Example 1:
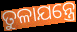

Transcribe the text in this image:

ତୁଳାଯନ୍ତ୍ରେ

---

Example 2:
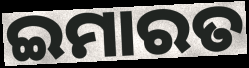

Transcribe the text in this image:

ଇମାରତ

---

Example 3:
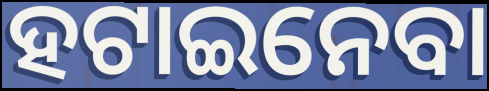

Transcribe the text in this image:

ହଟାଇନେବା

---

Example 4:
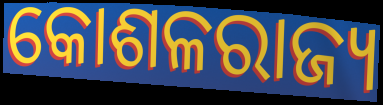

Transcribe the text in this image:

କୋଶଳରାଜ୍ୟ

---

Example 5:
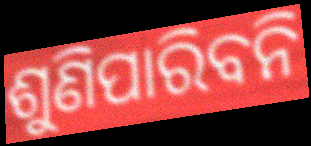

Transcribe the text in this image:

ଶୁଣିପାରିବନି